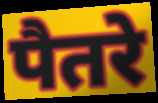
पैतरे